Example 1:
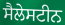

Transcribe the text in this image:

ਸੈਲੇਸਟੀਨ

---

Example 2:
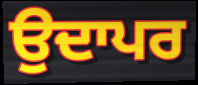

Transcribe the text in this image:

ਉਦਾਪਰ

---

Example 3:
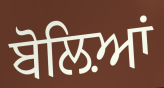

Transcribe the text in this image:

ਬੋਲ਼ਿਆਂ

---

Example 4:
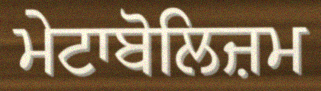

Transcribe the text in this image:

ਮੇਟਾਬੋਲਿਜ਼ਮ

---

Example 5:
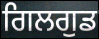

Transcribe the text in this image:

ਗਿਲਗੁਡ